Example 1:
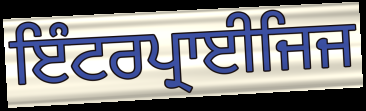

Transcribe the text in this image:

ਇੰਟਰਪ੍ਰਾਈਜਿਜ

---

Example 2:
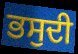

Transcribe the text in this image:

ਭਸੁਦੀ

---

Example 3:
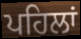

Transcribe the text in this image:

ਪਹਿਲਾਂ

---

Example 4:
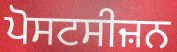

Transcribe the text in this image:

ਪੋਸਟਸੀਜ਼ਨ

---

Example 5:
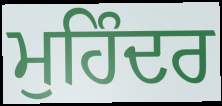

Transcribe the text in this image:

ਮੁਹਿੰਦਰ